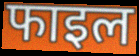
फाइल